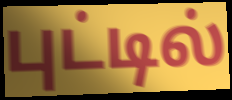
புட்டில்